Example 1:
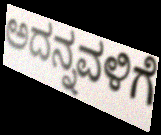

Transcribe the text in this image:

ಅದನ್ನವಳಿಗೆ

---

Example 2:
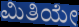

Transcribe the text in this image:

ಮಿತಿಯೇ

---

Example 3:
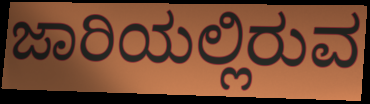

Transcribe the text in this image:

ಜಾರಿಯಲ್ಲಿರುವ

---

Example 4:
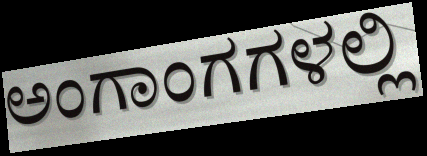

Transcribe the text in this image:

ಅಂಗಾಂಗಗಳಲ್ಲಿ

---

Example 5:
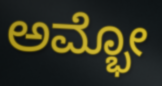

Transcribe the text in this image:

ಅಮ್ಭೋ